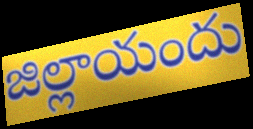
జిల్లాయందు